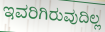
ಇವರಿಗಿರುವುದಿಲ್ಲ